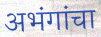
अभंगांचा